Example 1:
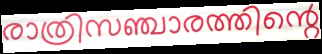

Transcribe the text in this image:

രാത്രിസഞ്ചാരത്തിന്റെ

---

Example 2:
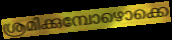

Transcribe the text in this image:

ശ്രമിക്കുമ്പോഴൊക്കെ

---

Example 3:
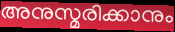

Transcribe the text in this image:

അനുസ്മരിക്കാനും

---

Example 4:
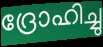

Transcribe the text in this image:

ദ്രോഹിച്ചു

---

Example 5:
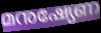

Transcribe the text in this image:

മനുഷ്യേണ